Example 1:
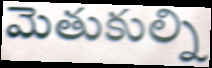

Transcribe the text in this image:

మెతుకుల్ని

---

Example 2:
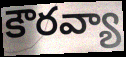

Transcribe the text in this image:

కౌరవ్యా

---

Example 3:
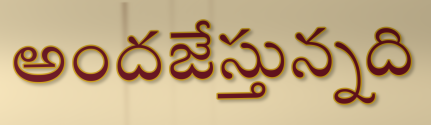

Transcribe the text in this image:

అందజేస్తున్నది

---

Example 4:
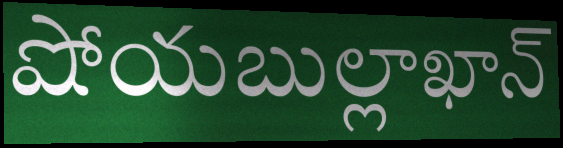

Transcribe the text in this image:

షోయబుల్లాఖాన్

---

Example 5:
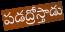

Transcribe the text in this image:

పడద్రోస్తాడు